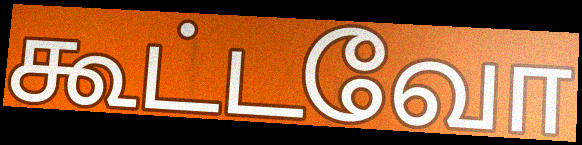
கூட்டவோ